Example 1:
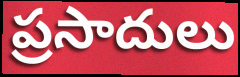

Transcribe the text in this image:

ప్రసాదులు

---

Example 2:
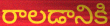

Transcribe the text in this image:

రాలడానికి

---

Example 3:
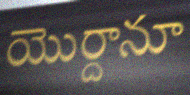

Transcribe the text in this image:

యొర్దానూ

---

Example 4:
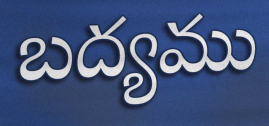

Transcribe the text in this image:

బద్యము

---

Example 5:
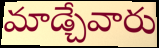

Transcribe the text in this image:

మాడ్చేవారు